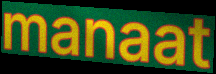
manaat